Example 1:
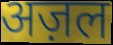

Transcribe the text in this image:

अज़ल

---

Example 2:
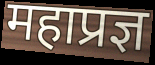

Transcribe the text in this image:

महाप्रज्ञ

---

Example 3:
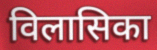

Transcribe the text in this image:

विलासिका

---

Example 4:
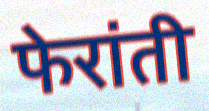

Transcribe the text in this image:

फेरांती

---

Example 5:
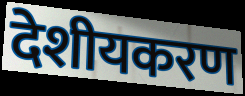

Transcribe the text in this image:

देशीयकरण